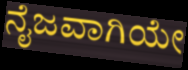
ನೈಜವಾಗಿಯೇ